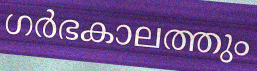
ഗർഭകാലത്തും